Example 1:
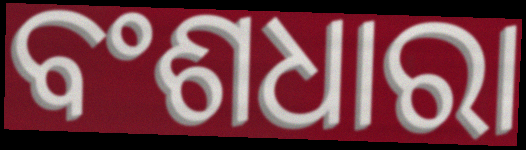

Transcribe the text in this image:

ବଂଶଧାରା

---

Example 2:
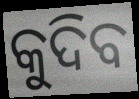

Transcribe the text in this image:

କୁଦିବ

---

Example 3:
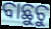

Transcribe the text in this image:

ବାଛୁଚୁ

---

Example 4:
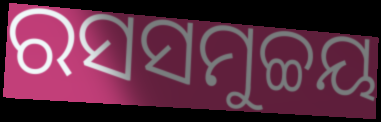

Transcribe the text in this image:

ରସସମୁଚ୍ଚୟ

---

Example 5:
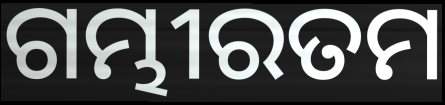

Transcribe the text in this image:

ଗମ୍ଭୀରତମ